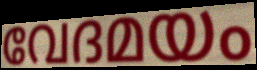
വേദമയം